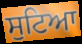
ਸੁਟਿਆ